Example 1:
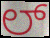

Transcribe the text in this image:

ಲ್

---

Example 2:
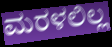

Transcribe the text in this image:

ಮರಳಲಿಲ್ಲ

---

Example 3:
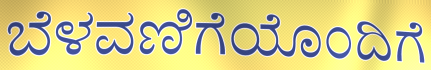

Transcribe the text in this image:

ಬೆಳವಣಿಗೆಯೊಂದಿಗೆ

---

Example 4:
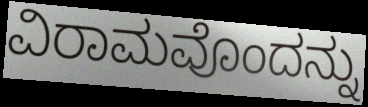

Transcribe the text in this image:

ವಿರಾಮವೊಂದನ್ನು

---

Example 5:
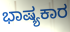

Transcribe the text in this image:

ಭಾಷ್ಯಕಾರ